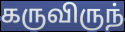
கருவிருந்